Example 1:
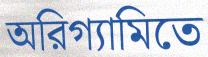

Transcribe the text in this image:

অরিগ্যামিতে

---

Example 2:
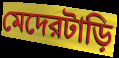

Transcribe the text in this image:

মেদেরটাড়ি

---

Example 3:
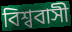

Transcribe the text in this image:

বিশ্ববাসী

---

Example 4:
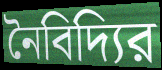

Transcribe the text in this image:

নৈবিদ্যির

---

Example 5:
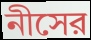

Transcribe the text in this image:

নীসের